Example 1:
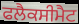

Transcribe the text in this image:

ਫਲੈਕਸੀਮੈਟ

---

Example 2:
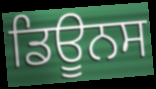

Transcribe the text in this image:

ਡਿਊਨਸ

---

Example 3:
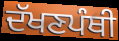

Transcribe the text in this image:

ਦੱਖਣਪੰਥੀ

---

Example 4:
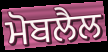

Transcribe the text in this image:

ਮੋਬਲੈਲ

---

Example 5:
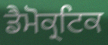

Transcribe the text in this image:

ਡੈਮੋਕ੍ਰਟਿਕ